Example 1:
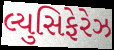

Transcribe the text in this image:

લ્યુસિફેરેઝ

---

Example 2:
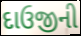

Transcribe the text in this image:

દાઉજીની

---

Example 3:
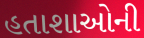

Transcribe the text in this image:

હતાશાઓની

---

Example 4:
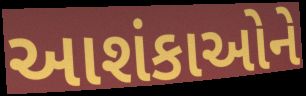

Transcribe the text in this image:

આશંકાઓને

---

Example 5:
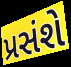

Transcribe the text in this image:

પ્રસંશે